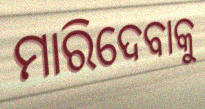
ମାରିଦେବାକୁ